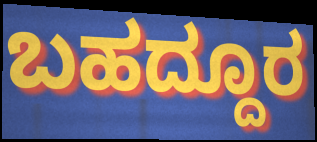
ಬಹದ್ದೂರ